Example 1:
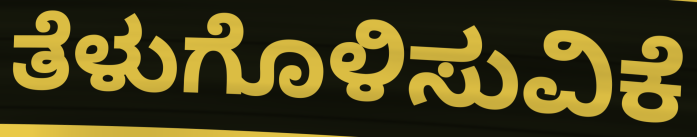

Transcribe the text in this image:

ತೆಳುಗೊಳಿಸುವಿಕೆ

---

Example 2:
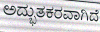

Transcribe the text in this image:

ಅದ್ಭುತಕರವಾಗಿದೆ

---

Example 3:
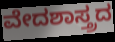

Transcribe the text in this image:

ವೇದಶಾಸ್ತ್ರದ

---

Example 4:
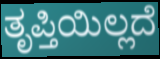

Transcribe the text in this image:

ತೃಪ್ತಿಯಿಲ್ಲದೆ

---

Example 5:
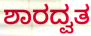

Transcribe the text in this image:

ಶಾರದ್ವತ